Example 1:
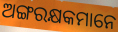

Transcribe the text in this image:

ଅଙ୍ଗରକ୍ଷକମାନେ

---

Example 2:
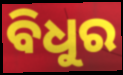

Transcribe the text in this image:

ବିଧୁର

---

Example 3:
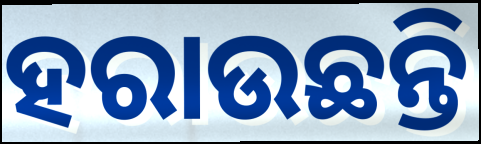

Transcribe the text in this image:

ହରାଉଛନ୍ତି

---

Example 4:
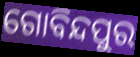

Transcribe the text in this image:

ଗୋବିନ୍ଦପୁର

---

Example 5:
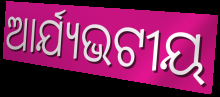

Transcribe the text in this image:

ଆର୍ଯ୍ୟଭଟୀୟ